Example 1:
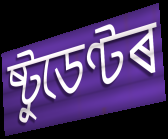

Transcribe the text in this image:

ষ্টুডেণ্টৰ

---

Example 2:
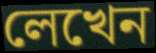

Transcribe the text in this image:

লেখেন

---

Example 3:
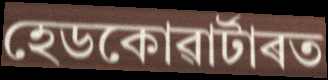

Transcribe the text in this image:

হেডকোৱাৰ্টাৰত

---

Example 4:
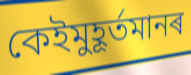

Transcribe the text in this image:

কেইমুহূৰ্তমানৰ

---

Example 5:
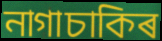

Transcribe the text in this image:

নাগাচাকিৰ